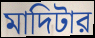
মাদিটার